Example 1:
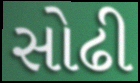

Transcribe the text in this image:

સોઢી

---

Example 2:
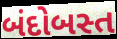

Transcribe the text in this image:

બંદોબસ્ત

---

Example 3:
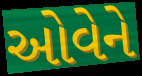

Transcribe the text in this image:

ઓવેને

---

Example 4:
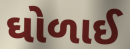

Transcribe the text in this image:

ઘોળાઈ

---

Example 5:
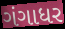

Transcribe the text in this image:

ગંગાધર